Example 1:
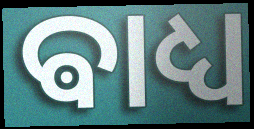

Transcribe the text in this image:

ଵାଧ୍ୟ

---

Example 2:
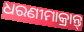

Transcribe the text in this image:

ଧରଣୀମାକ୍ରାନ୍ତ୍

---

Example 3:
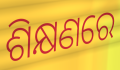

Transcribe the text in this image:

ଶିକ୍ଷଣରେ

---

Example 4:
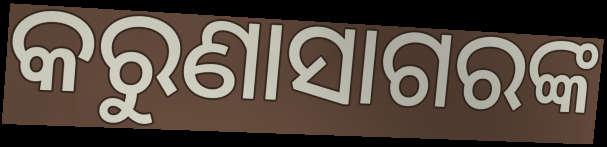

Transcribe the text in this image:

କରୁଣାସାଗରଙ୍କ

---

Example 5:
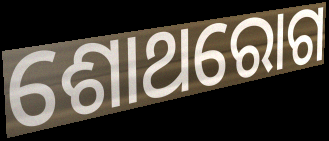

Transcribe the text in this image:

ଶୋଥରୋଗ